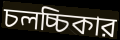
চলচ্চিকার